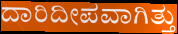
ದಾರಿದೀಪವಾಗಿತ್ತು